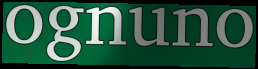
ognuno